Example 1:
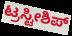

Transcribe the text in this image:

ಟ್ರಸ್ಟೀಶಿಪ್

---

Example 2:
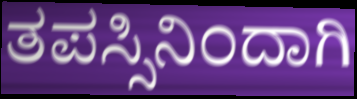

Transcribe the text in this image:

ತಪಸ್ಸಿನಿಂದಾಗಿ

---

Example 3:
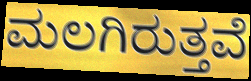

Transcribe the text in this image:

ಮಲಗಿರುತ್ತವೆ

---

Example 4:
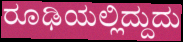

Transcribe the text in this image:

ರೂಢಿಯಲ್ಲಿದ್ದುದು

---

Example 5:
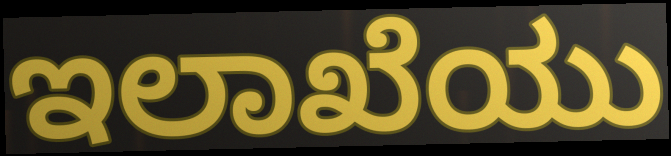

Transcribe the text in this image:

ಇಲಾಖೆಯು